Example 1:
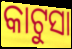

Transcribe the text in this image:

କାଟୁସା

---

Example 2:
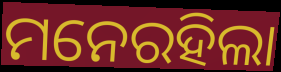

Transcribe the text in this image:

ମନେରହିଲା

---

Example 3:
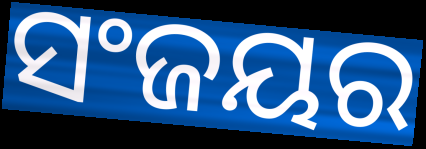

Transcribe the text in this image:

ସଂଜୟର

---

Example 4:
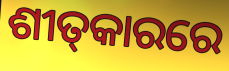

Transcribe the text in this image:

ଶୀତ୍‌କାରରେ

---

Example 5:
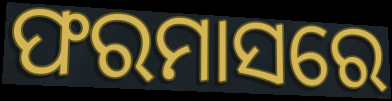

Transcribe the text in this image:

ଫରମାସରେ